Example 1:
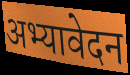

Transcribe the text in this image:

अभ्यावेदन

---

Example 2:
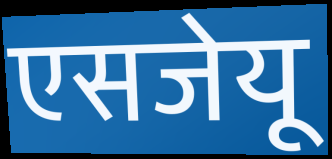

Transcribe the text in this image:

एसजेयू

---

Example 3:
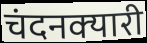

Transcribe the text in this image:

चंदनक्यारी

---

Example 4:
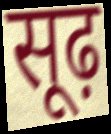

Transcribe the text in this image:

सूढ़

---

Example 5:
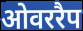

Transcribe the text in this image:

ओवररैप